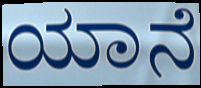
ಯಾನೆ